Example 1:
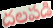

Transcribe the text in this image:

దలపడి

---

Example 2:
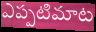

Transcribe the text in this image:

ఎప్పటిమాట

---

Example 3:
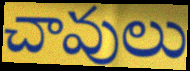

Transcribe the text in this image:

చావులు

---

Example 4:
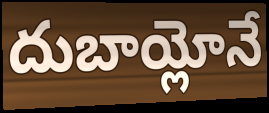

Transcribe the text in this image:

దుబాయ్లోనే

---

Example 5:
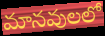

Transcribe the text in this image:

మానవులలో